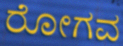
ರೋಗವ